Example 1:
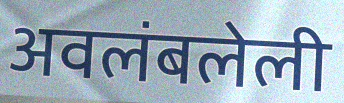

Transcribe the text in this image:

अवलंबलेली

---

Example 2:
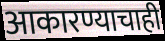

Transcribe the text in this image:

आकारण्याचाही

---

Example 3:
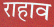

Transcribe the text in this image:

राहाव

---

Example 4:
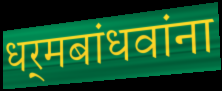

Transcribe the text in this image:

धर्मबांधवांना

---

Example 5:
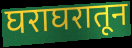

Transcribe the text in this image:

घराघरातून